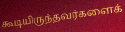
கூடியிருந்தவர்களைக்